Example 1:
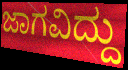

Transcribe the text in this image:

ಜಾಗವಿದ್ದು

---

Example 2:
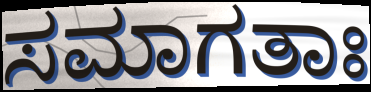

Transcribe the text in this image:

ಸಮಾಗತಾಃ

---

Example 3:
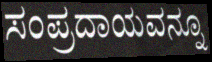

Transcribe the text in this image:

ಸಂಪ್ರದಾಯವನ್ನೂ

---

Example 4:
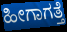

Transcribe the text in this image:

ಹೀಗಾಗತ್ತೆ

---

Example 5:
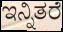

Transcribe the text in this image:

ಇನ್ನಿತರೆ